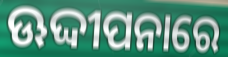
ଊଦ୍ଦୀପନାରେ